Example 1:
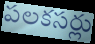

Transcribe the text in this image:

పలకసర్లు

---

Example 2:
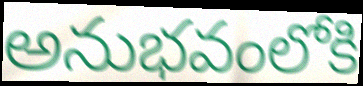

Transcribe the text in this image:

అనుభవంలోకి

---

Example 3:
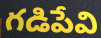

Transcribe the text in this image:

గడిపేవి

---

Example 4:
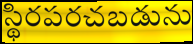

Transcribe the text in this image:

స్థిరపరచబడును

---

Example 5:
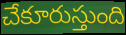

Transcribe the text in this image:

చేకూరుస్తుంది